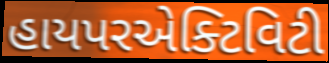
હાયપરએક્ટિવિટી